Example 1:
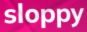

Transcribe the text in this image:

sloppy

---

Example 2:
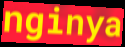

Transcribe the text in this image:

nginya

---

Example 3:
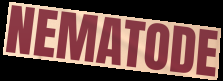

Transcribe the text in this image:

NEMATODE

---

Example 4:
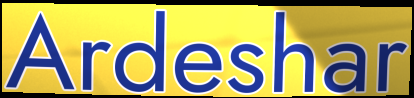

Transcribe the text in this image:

Ardeshar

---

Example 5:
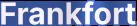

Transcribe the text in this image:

Frankfort